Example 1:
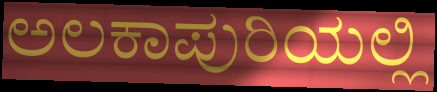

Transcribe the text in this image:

ಅಲಕಾಪುರಿಯಲ್ಲಿ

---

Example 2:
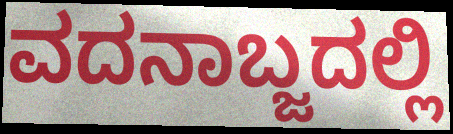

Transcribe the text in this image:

ವದನಾಬ್ಜದಲ್ಲಿ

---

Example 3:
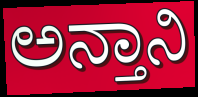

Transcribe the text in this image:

ಅನ್ತಾನಿ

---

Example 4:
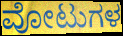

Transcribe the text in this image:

ವೋಟುಗಳ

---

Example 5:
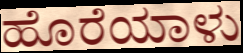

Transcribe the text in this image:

ಹೊರೆಯಾಳು